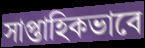
সাপ্তাহিকভাবে